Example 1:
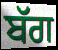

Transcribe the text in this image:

ਬੱਗ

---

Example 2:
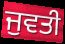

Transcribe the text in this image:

ਜੁਵਤੀ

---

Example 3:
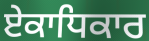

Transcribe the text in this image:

ਏਕਾਧਿਕਾਰ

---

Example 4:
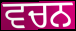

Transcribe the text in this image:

ਵਚਨ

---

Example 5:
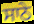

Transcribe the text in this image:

ਸਾਠੇ